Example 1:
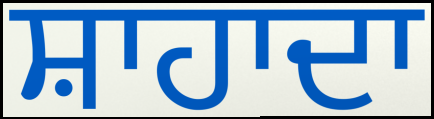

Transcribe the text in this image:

ਸ਼ਾਹਾਦਾ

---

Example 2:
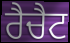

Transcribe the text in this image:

ਰੈਚੈਟ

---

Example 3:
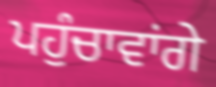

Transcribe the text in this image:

ਪਹੁੰਚਾਵਾਂਗੇ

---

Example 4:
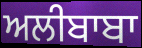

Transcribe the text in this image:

ਅਲੀਬਾਬਾ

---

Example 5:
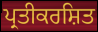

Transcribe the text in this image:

ਪ੍ਰਤੀਕਰਸ਼ਿਤ